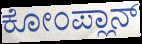
ಕೋಂಪ್ಲಾನ್